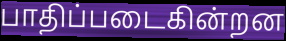
பாதிப்படைகின்றன